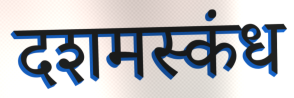
दशमस्कंध